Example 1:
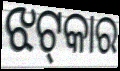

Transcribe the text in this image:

ଝଟ୍‍କାର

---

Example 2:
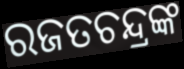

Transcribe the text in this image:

ରଜତଚନ୍ଦ୍ରଙ୍କ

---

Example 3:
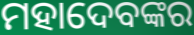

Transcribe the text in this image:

ମହାଦେବଙ୍କର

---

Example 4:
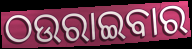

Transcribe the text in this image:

ଠଉରାଇବାର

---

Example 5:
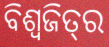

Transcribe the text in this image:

ବିଶ୍ୱଜିତ୍‌ର